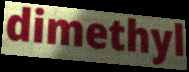
dimethyl